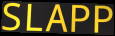
SLAPP